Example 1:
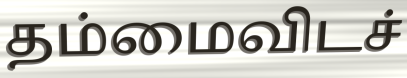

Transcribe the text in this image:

தம்மைவிடச்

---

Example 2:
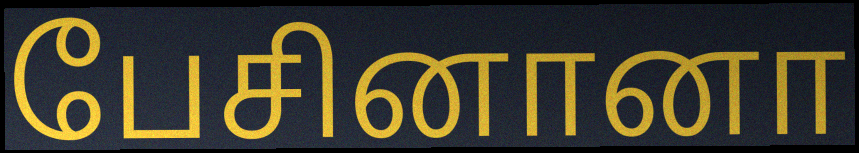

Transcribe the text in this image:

பேசினானா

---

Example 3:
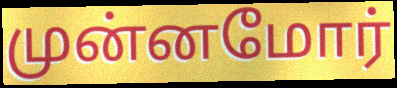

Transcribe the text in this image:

முன்னமோர்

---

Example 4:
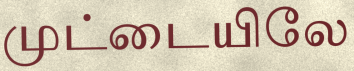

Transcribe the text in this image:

முட்டையிலே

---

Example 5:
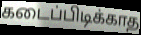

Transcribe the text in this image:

கடைப்பிடிக்காத